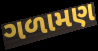
ગળામણ